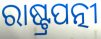
ରାଷ୍ଟ୍ରପତ୍ନୀ